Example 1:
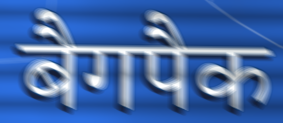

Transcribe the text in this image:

बैगपैक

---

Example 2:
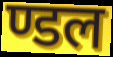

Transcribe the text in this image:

ण्डल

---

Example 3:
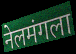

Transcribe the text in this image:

नेलमंगला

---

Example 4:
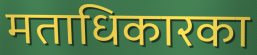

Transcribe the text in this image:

मताधिकारका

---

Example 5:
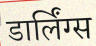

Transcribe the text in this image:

डार्लिंग्स